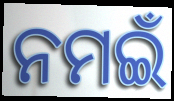
ନମଇଁ